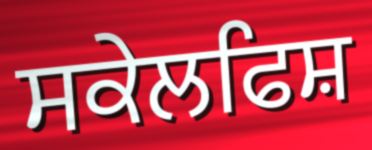
ਸਕੇਲਫਿਸ਼